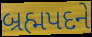
બ્રહ્મપદને